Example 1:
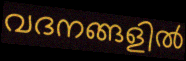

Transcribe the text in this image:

വദനങ്ങളിൽ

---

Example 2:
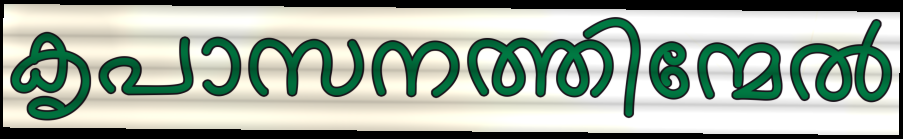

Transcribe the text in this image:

കൃപാസനത്തിന്മേൽ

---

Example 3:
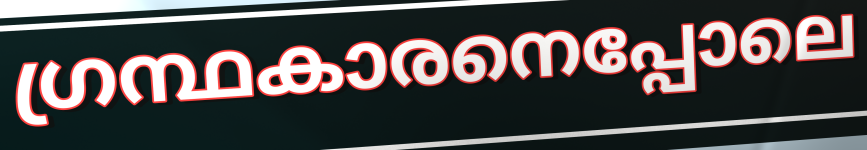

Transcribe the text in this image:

ഗ്രന്ഥകാരനെപ്പോലെ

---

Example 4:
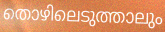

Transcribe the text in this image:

തൊഴിലെടുത്താലും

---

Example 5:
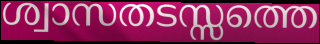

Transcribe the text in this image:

ശ്വാസതടസ്സത്തെ